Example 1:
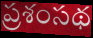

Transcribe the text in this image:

ప్రశంసథ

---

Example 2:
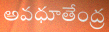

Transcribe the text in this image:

అవధూతేంద్ర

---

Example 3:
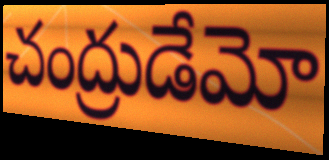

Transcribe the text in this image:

చంద్రుడేమో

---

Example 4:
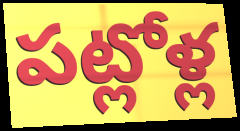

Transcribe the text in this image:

పట్లోళ్ల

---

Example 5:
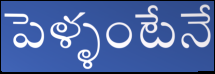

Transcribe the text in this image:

పెళ్ళంటేనే